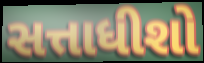
સત્તાધીશો